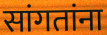
सांगतांना